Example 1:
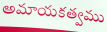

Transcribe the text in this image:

అమాయకత్వము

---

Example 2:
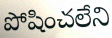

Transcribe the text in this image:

పోషించలేని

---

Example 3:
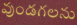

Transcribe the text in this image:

వుండగలను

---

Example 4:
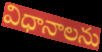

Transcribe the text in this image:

విధానాలను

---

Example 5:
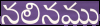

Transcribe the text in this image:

నలినము